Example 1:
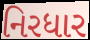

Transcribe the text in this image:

નિરધાર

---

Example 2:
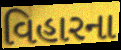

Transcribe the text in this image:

વિહારના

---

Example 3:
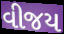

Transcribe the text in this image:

વીજય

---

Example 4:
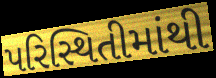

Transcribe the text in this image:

પરિસ્થિતીમાંથી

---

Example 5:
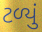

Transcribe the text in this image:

ટળ્યું